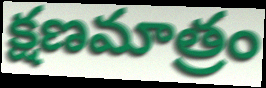
క్షణమాత్రం